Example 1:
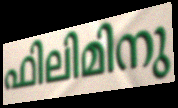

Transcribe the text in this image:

ഫിലിമിനു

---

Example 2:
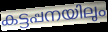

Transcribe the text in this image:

കട്ടപ്പനയിലും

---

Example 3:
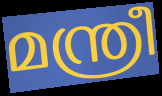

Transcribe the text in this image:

മന്ത്രീ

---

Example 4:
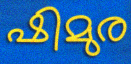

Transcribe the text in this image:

ഷിമുര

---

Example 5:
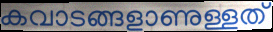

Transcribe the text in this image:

കവാടങ്ങളാണുള്ളത്